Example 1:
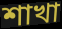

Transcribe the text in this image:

শাখা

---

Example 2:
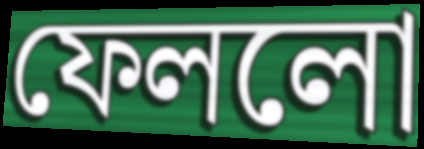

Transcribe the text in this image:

ফেললো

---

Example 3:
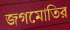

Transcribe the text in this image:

জগমোতির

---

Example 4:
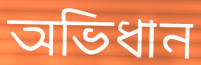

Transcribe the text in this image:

অভিধান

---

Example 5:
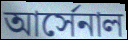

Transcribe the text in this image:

আর্সেনাল